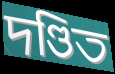
দণ্ডিত